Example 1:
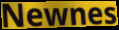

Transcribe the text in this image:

Newnes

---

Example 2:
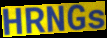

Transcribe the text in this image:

HRNGs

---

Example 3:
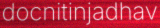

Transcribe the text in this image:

docnitinjadhav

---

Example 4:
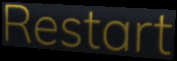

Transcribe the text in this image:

Restart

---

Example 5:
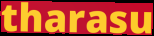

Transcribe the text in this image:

tharasu